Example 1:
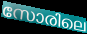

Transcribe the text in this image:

സോരിലെ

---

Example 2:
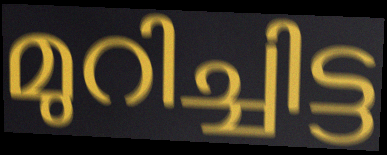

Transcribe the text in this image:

മുറിച്ചിട്ട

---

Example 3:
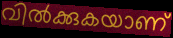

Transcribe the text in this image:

വിൽക്കുകയാണ്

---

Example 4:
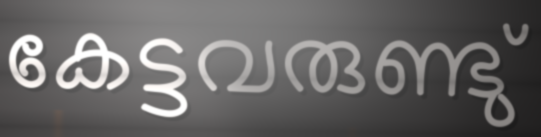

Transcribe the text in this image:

കേട്ടവരുണ്ടു്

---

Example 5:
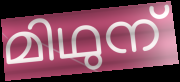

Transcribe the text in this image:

മിഥുന്